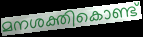
മനശക്തികൊണ്ട്